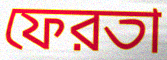
ফেরতা